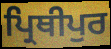
ਪ੍ਰਿਥੀਪੁਰ